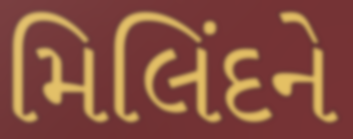
મિલિંદને